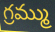
గ్రమ్ము